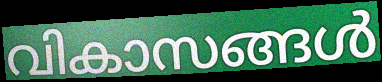
വികാസങ്ങൾ